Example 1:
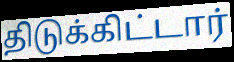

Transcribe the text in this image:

திடுக்கிட்டார்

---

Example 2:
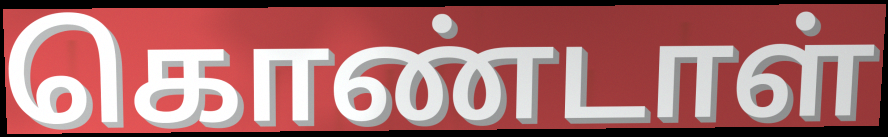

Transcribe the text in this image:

கொண்டாள்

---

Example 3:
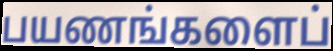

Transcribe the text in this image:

பயணங்களைப்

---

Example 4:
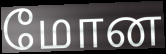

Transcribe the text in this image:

மோன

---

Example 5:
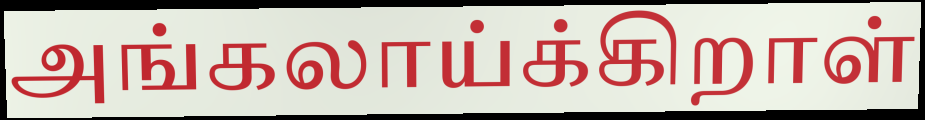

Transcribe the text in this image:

அங்கலாய்க்கிறாள்